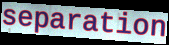
separation